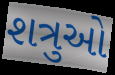
શત્રુઓ